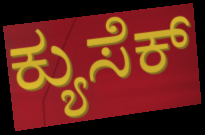
ಕ್ಯುಸೆಕ್